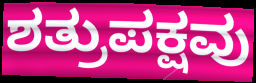
ಶತ್ರುಪಕ್ಷವು